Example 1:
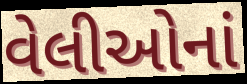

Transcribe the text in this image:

વેલીઓનાં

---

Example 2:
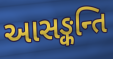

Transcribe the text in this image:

આસઙ્કન્તિ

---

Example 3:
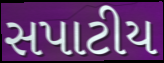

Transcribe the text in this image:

સપાટીય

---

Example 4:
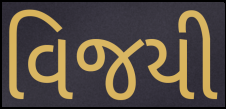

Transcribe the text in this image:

વિજયી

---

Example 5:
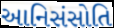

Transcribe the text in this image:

આનિસંસોતિ